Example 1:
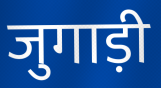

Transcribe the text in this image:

जुगाड़ी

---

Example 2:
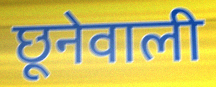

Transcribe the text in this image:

छूनेवाली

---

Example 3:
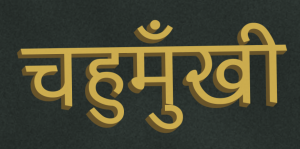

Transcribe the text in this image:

चहुमुँखी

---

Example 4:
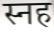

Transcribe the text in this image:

स्नह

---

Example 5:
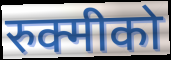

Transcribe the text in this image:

रुक्मीको